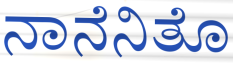
ನಾನೆನಿತೊ